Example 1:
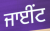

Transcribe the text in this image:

ਜਾਈਂਟ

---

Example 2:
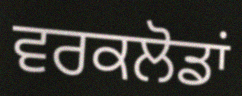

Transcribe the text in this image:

ਵਰਕਲੋਡਾਂ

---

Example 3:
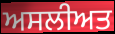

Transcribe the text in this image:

ਅਸਲੀਅਤ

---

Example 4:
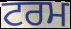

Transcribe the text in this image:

ਟਰਮ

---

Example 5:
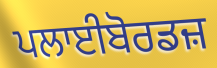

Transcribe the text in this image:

ਪਲਾਈਬੋਰਡਜ਼